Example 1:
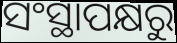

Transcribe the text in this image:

ସଂସ୍ଥାପକ୍ଷରୁ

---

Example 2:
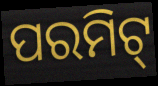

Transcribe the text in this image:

ପରମିଟ୍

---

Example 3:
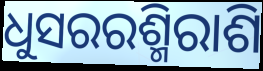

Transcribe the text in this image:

ଧୁସରରଶ୍ମିରାଶି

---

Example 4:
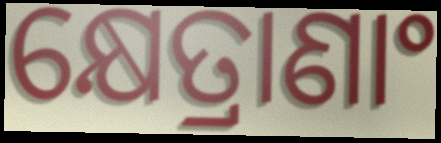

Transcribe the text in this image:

କ୍ଷେତ୍ରାଣାଂ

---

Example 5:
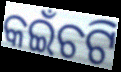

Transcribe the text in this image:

କଇଁଚଟି